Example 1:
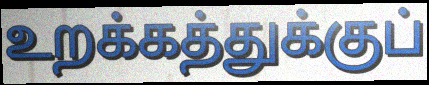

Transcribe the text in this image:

உறக்கத்துக்குப்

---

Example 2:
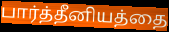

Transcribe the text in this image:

பார்த்தீனியத்தை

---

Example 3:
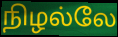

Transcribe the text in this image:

நிழல்லே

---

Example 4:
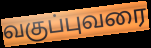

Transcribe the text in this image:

வகுப்புவரை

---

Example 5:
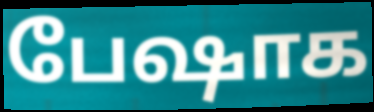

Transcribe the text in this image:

பேஷாக